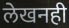
लेखनही